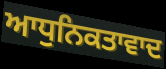
ਆਧੁਨਿਕਤਾਵਾਦ